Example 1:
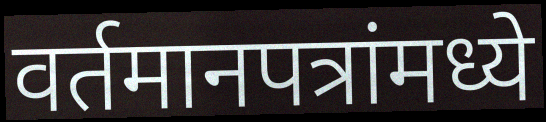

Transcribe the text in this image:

वर्तमानपत्रांमध्ये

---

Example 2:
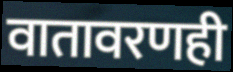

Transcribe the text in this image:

वातावरणही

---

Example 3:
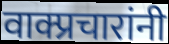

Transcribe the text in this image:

वाक्प्रचारांनी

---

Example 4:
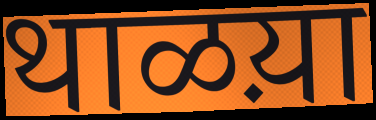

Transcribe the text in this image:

थाळय़ा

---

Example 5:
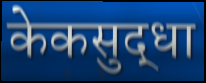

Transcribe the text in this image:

केकसुद्धा